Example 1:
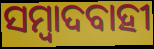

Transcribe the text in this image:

ସମ୍ବାଦବାହୀ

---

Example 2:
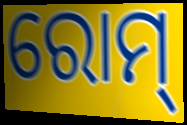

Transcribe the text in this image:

ରୋମ୍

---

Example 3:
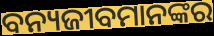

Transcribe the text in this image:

ବନ୍ୟଜୀବମାନଙ୍କର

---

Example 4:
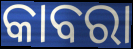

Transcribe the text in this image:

କାବରା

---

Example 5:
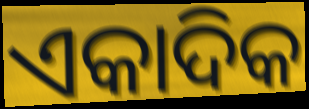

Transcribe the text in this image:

ଏକାଦିକ